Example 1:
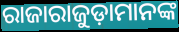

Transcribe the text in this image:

ରାଜାରାଜୁଡ଼ାମାନଙ୍କ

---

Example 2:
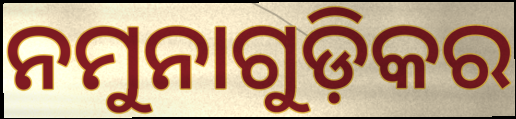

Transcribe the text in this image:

ନମୁନାଗୁଡ଼ିକର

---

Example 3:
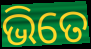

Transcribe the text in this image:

ଭିତେ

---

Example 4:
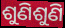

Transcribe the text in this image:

ଶୁଣିଶୁଣି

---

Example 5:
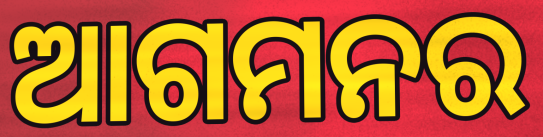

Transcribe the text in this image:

ଆଗମନର